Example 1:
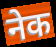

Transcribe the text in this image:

नेक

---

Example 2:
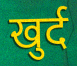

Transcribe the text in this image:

खुर्द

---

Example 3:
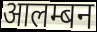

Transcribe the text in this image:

आलम्बन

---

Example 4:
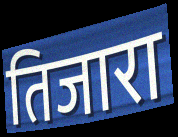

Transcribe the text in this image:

तिजारा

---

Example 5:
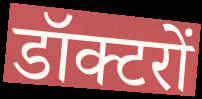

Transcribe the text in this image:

डॉक्टरों